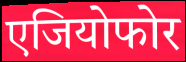
एजियोफोर